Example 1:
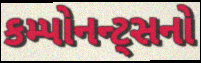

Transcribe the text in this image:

કમ્પોનન્ટ્સનો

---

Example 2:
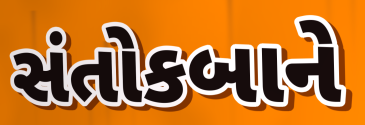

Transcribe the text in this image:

સંતોકબાને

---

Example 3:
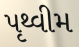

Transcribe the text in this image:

પૃથ્વીમ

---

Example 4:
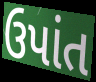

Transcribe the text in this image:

ઉપાંત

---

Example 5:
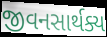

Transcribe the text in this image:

જીવનસાર્થક્ય